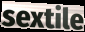
sextile